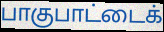
பாகுபாட்டைக்